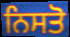
ਨਿਸਤੋ